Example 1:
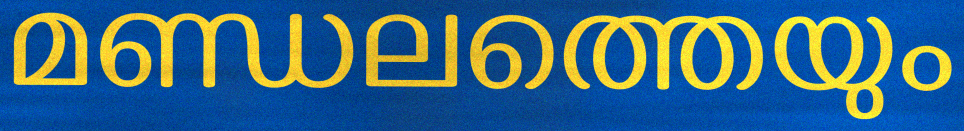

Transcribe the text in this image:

മണ്ഡലത്തെയും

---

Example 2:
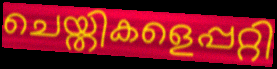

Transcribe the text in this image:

ചെയ്തികളെപ്പറ്റി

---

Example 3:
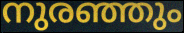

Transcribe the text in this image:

നുരഞ്ഞും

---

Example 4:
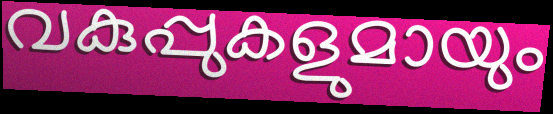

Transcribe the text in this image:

വകുപ്പുകളുമായും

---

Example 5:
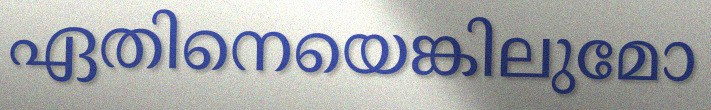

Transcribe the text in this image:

ഏതിനെയെങ്കിലുമോ